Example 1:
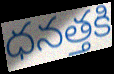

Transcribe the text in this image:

ధనత్తకి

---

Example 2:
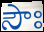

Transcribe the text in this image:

సౌః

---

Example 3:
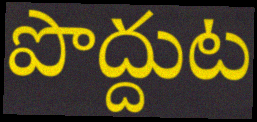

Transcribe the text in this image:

పొద్దుట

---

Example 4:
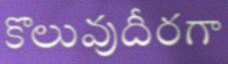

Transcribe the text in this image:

కొలువుదీరగా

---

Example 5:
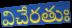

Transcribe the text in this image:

విచేరతుః